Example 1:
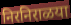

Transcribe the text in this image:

निरनिराळया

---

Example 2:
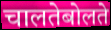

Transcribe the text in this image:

चालतेबोलते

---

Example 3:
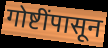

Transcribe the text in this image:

गोष्टींपासून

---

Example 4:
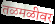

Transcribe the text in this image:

तळमळीवर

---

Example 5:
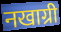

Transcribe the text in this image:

नखाग्री